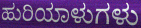
ಹುರಿಯಾಳುಗಳು